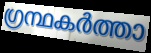
ഗ്രന്ഥകർത്താ